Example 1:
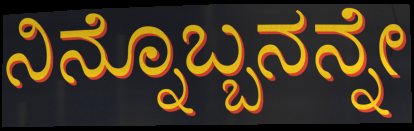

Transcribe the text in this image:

ನಿನ್ನೊಬ್ಬನನ್ನೇ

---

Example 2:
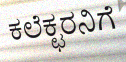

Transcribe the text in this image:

ಕಲೆಕ್ಟರನಿಗೆ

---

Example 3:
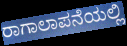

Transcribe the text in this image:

ರಾಗಾಲಾಪನೆಯಲ್ಲಿ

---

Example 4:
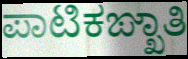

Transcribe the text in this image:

ಪಾಟಿಕಙ್ಖಾತಿ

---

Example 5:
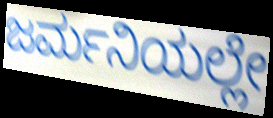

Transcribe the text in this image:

ಜರ್ಮನಿಯಲ್ಲೇ